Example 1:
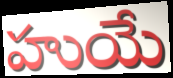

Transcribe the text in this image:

హుయే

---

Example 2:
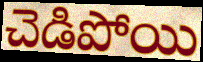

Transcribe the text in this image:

చెడిపోయి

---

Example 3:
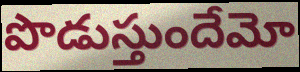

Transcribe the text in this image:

పొడుస్తుందేమో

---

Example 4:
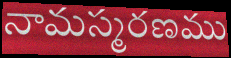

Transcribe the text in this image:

నామస్మరణము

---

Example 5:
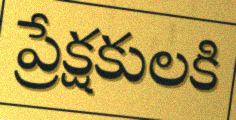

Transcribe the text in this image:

ప్రేక్షకులకి